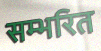
सम्भरित